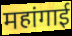
महांगाई